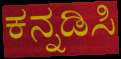
ಕನ್ನಡಿಸಿ